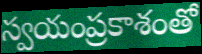
స్వయంప్రకాశంతో